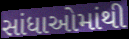
સાંધાઓમાંથી